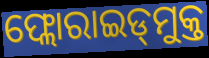
ଫ୍ଲୋରାଇଡ୍‌ମୁକ୍ତ